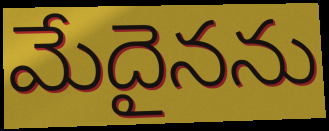
మేదైనను